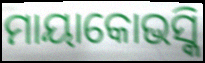
ମାୟାକୋଭସ୍କି